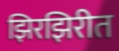
झिरझिरीत